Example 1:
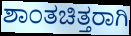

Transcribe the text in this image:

ಶಾಂತಚಿತ್ತರಾಗಿ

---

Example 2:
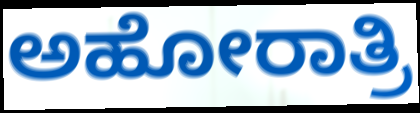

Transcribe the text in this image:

ಅಹೋರಾತ್ರಿ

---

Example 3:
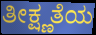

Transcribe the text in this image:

ತೀಕ್ಷ್ಣತೆಯ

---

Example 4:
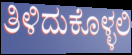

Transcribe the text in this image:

ತಿಳಿದುಕೊಳ್ಳಲಿ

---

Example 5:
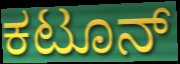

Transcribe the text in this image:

ಕಟೂನ್